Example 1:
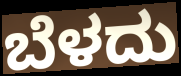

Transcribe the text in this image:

ಬೆಳದು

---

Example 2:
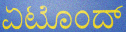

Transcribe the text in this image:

ಏಟೊಂದ್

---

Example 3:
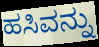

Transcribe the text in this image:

ಹಸಿವನ್ನು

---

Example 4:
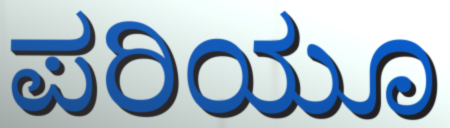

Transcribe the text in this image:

ಪರಿಯೂ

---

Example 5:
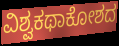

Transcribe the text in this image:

ವಿಶ್ವಕಥಾಕೋಶದ